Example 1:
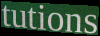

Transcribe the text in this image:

tutions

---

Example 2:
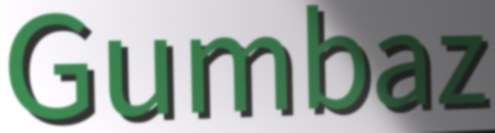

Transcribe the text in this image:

Gumbaz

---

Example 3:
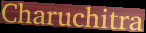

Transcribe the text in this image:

Charuchitra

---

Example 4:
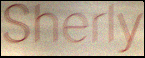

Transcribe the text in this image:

Sherly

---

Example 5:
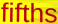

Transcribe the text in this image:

fifths